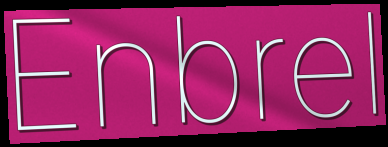
Enbrel